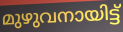
മുഴുവനായിട്ട്